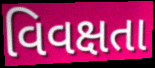
વિવક્ષતા